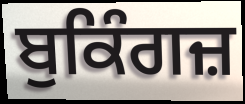
ਬੁਕਿੰਗਜ਼